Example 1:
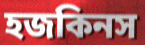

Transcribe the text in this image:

হজকিনস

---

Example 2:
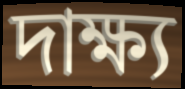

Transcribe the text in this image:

দাক্ষ্য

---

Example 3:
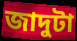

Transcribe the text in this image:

জাদুটা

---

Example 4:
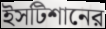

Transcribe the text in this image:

ইসটিশানের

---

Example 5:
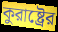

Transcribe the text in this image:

কুরাষ্ট্রের